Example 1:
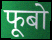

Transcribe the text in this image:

फूबो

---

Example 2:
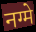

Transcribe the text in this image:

नग्मे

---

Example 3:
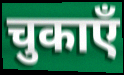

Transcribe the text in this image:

चुकाएँ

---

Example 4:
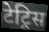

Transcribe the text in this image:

टेट्रिस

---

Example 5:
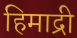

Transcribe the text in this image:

हिमाद्री